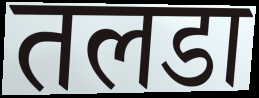
तलडा